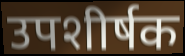
उपशीर्षक